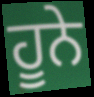
ਹੂਨੇ